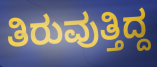
ತಿರುವುತ್ತಿದ್ದ